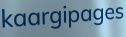
kaargipages